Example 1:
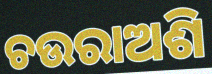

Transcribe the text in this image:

ଚଉରାଅଶି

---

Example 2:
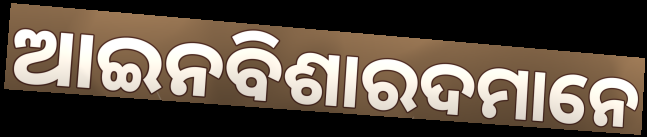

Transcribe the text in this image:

ଆଇନବିଶାରଦମାନେ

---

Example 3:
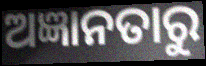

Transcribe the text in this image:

ଅଜ୍ଞାନତାରୁ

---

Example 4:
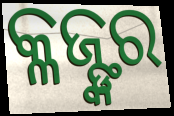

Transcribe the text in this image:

କ୍ଳଜ୍ଙ୍କର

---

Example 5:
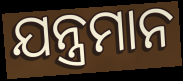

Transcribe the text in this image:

ଯନ୍ତ୍ରମାନ